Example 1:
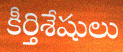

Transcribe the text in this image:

కీర్తిశేషులు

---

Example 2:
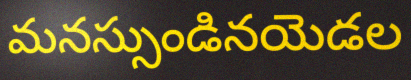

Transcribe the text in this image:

మనస్సుండినయెడల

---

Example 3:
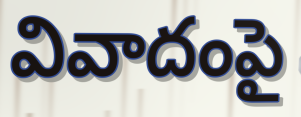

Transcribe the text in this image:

వివాదంపై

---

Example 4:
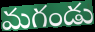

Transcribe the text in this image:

మగండు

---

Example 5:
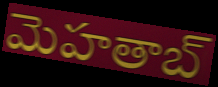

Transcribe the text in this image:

మెహతాబ్